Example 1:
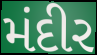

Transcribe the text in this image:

મંદીર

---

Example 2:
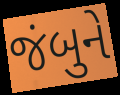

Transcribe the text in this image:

જંબુને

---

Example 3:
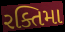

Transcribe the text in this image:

રક્તિમા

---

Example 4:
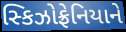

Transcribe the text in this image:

સ્કિઝોફ્રેનિયાને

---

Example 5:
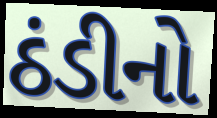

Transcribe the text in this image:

ઠંડીનો